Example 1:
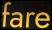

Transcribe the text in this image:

fare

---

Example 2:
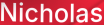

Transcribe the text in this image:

Nicholas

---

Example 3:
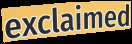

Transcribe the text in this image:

exclaimed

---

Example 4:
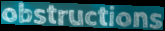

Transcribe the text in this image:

obstructions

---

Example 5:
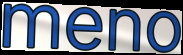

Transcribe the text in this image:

meno